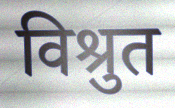
विश्रुत